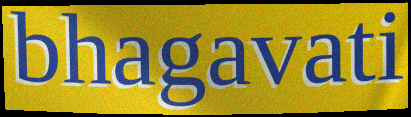
bhagavati